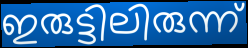
ഇരുട്ടിലിരുന്ന്